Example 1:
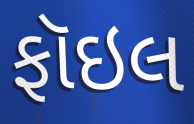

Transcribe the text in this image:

ફૉઇલ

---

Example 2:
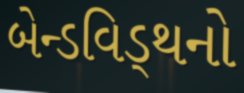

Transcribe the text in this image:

બેન્ડવિડ્થનો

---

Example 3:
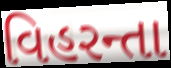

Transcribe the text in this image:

વિહરન્તા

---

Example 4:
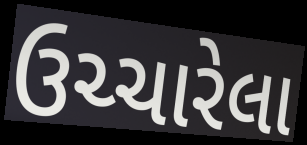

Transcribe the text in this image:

ઉચ્ચારેલા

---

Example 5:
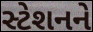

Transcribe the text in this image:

સ્ટેશનને